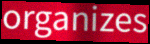
organizes